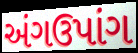
અંગઉપાંગ